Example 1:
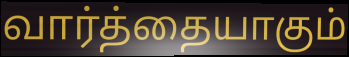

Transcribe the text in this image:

வார்த்தையாகும்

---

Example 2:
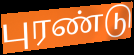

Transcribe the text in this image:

புரண்டு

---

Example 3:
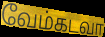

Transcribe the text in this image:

வேம்கடவா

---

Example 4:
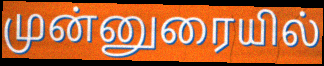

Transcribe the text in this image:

முன்னுரையில்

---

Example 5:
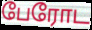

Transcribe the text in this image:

பேரோட